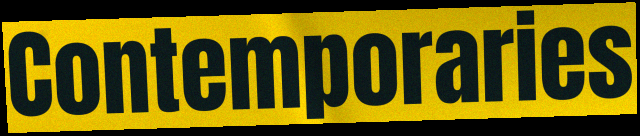
Contemporaries